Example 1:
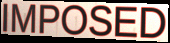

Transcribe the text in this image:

IMPOSED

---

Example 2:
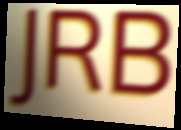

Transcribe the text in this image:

JRB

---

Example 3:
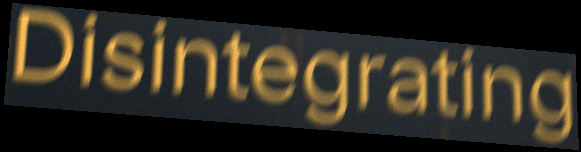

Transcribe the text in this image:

Disintegrating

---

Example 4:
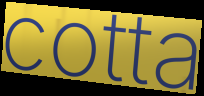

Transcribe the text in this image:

cotta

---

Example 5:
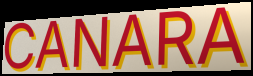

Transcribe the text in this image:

CANARA